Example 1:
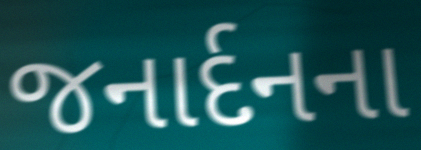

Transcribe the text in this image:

જનાર્દનના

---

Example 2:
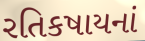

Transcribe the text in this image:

રતિકષાયનાં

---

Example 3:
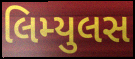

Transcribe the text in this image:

લિમ્યુલસ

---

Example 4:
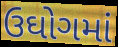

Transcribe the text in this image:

ઉઘોગમાં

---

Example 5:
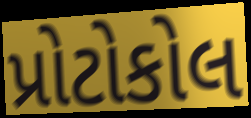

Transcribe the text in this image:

પ્રોટોકોલ